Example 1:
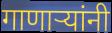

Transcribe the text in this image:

गाणाऱ्यांनी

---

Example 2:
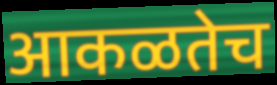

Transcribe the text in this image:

आकळतेच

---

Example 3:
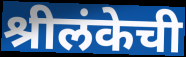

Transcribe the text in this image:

श्रीलंकेची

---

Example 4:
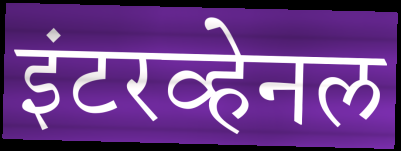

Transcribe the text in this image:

इंटरव्हेनल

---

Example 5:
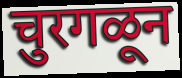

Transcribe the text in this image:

चुरगळून